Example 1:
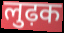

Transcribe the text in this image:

लुढ़क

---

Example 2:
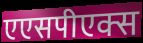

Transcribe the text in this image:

एएसपीएक्स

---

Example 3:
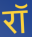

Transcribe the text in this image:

रॉ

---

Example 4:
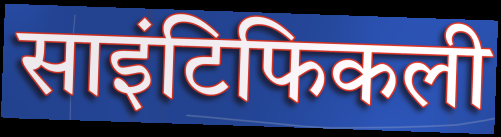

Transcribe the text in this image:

साइंटिफिकली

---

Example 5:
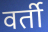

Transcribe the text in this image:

वर्ती